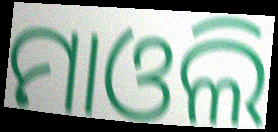
ମାଓଲି